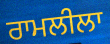
ਰਾਮਲੀਲਾ